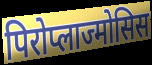
पिरोप्लाज्मोसिस